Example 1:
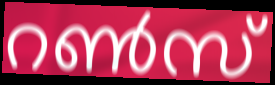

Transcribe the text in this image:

റൺസ്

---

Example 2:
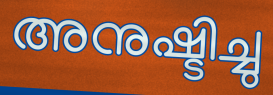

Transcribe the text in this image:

അനുഷ്ടിച്ചു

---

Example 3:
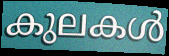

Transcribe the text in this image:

കുലകൾ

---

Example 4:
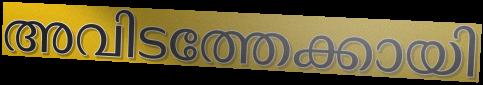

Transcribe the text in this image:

അവിടത്തേക്കായി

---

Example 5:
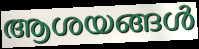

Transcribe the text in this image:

ആശയങ്ങൾ